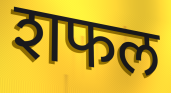
शफल